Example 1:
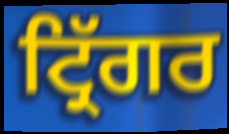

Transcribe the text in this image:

ਟ੍ਰਿੱਗਰ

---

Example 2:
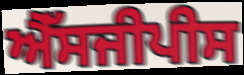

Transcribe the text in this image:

ਐੱਸਜੀਪੀਸ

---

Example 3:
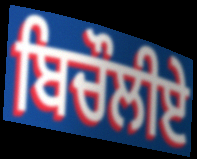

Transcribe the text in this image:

ਬਿਚੌਲੀਏ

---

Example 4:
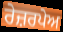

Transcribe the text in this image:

ਰੇਜ਼ਰਪੇਅ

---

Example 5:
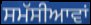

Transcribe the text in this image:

ਸਮੱਸੀਆਵਾਂ